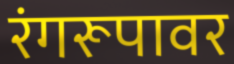
रंगरूपावर